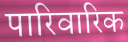
पारिवारिक